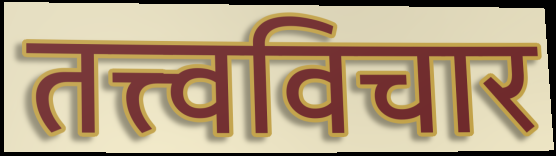
तत्त्वविचार